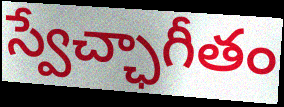
స్వేచ్ఛాగీతం